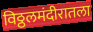
विठ्ठलमंदीरातला